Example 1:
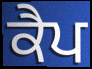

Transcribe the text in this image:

ਕੈਪ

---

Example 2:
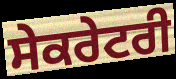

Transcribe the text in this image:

ਸੇਕਰੇਟਰੀ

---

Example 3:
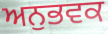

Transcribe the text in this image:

ਅਨੁਭਵਕ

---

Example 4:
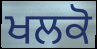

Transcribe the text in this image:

ਖਲਕੋ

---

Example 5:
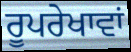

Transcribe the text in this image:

ਰੂਪਰੇਖਾਵਾਂ